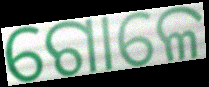
ଗୋଳେ